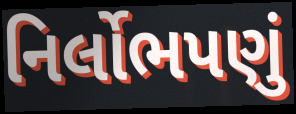
નિર્લોભપણું